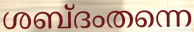
ശബ്ദംതന്നെ